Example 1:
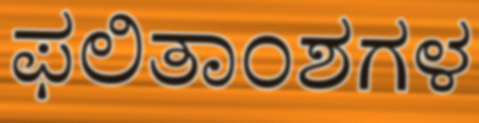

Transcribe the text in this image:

ಫಲಿತಾಂಶಗಳ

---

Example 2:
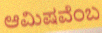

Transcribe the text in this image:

ಆಮಿಷವೆಂಬ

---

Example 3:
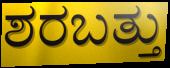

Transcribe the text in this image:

ಶರಬತ್ತು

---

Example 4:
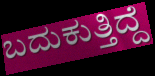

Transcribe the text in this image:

ಬದುಕುತ್ತಿದ್ದೆ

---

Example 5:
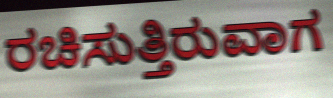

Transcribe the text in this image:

ರಚಿಸುತ್ತಿರುವಾಗ